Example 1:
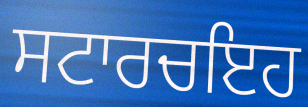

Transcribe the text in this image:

ਸਟਾਰਚਇਹ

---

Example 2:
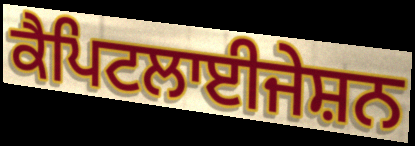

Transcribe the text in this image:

ਕੈਪਿਟਲਾਈਜੇਸ਼ਨ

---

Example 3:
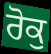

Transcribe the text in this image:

ਰੋਕੁ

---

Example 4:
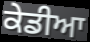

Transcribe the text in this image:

ਕੇਡੀਆ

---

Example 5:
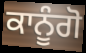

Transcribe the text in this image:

ਕਾਨੂੰਗੋ